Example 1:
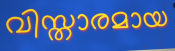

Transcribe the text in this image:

വിസ്താരമായ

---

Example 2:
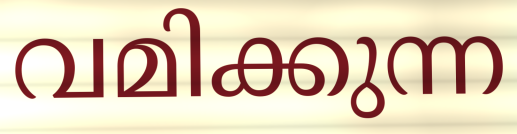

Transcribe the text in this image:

വമിക്കുന്ന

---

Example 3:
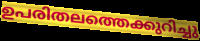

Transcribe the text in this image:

ഉപരിതലത്തെക്കുറിച്ചു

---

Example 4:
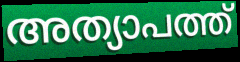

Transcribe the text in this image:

അത്യാപത്ത്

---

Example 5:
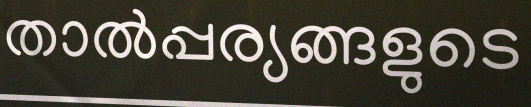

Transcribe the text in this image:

താൽപ്പര്യങ്ങളുടെ